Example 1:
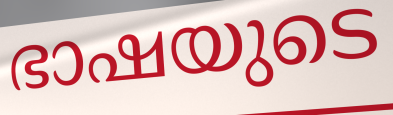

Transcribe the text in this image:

ഭാഷയുടെ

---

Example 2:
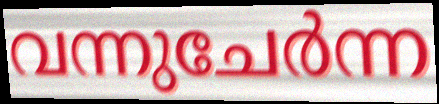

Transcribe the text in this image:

വന്നുചേർന്ന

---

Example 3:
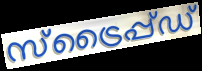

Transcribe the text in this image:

സ്ട്രൈപ്പ്ഡ്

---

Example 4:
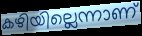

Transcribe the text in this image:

കഴിയില്ലെന്നാണ്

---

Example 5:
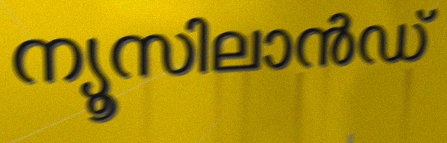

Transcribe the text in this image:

ന്യൂസിലാൻഡ്